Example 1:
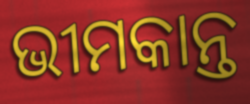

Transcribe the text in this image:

ଭୀମକାନ୍ତ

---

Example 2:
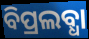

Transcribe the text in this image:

ବିପ୍ରଲବ୍ଧା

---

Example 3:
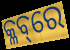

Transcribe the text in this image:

କ୍ଳବ୍‌ରେ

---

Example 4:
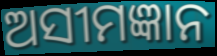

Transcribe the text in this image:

ଅସୀମଜ୍ଞାନ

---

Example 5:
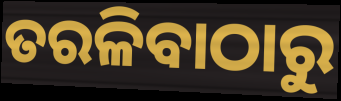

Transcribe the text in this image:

ତରଳିବାଠାରୁ